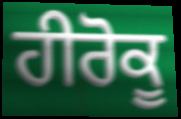
ਹੀਰੋਕੂ